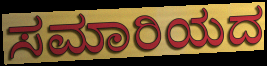
ಸಮಾರಿಯದ